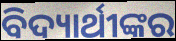
ବିଦ୍ୟାର୍ଥୀଙ୍କର